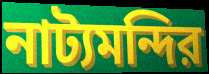
নাট্যমন্দির